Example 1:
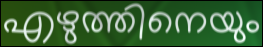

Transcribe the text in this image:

എഴുത്തിനെയും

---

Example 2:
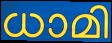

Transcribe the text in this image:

ധാമി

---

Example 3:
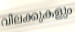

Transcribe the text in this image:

വിലക്കുകളും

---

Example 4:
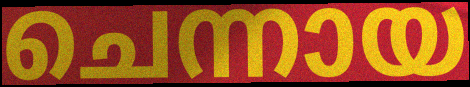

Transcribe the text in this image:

ചെന്നായ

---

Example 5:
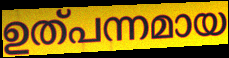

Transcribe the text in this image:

ഉത്പന്നമായ